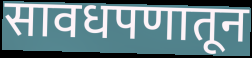
सावधपणातून